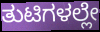
ತುಟಿಗಳಲ್ಲೇ